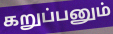
கறுப்பனும்